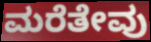
ಮರೆತೇವು